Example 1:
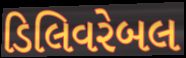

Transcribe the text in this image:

ડિલિવરેબલ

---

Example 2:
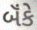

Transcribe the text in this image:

બૅંકે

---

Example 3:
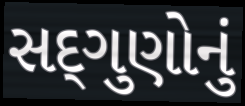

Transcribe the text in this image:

સદ્‌ગુણોનું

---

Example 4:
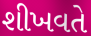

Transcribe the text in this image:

શીખવતે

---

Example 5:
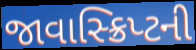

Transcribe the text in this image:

જાવાસ્ક્રિપ્ટની